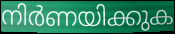
നിർണയിക്കുക